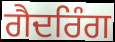
ਗੈਦਰਿੰਗ